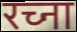
रच्ना